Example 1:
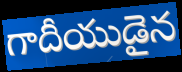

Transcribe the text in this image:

గాదీయుడైన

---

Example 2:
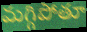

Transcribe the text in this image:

మగ్గిపోతూ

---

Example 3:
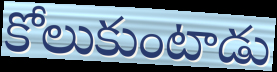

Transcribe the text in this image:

కోలుకుంటాడు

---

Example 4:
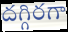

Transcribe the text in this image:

దగ్గిరగా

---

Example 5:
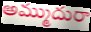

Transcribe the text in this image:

అమ్ముదురా